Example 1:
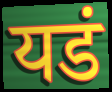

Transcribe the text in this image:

यडं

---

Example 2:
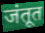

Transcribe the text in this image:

जंतूत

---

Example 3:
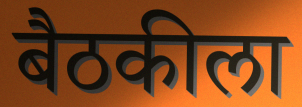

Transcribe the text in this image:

बैठकीला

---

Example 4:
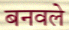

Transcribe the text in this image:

बनवले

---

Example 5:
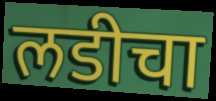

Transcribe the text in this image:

लडीचा